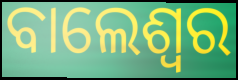
ବାଲେଶ୍ବର